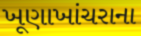
ખૂણાખાંચરાના